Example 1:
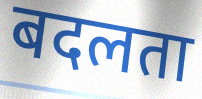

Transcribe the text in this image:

बदलता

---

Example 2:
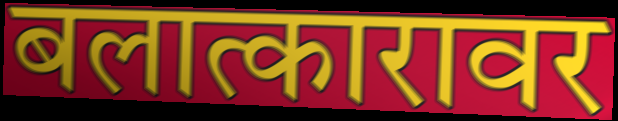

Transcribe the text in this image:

बलात्कारावर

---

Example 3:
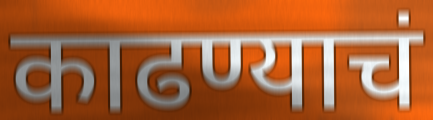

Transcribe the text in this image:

काढण्याचं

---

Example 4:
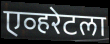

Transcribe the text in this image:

एव्हरेटला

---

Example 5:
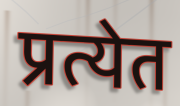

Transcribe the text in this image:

प्रत्येत